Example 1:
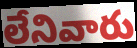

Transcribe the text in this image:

లేనివారు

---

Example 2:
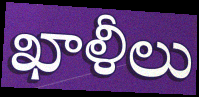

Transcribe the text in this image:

ఖాళీలు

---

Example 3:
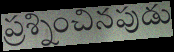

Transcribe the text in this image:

ప్రశ్నించినపుడు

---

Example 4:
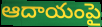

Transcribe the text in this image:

ఆదాయంపై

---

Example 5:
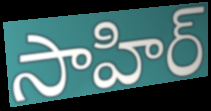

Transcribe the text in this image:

సాహిర్